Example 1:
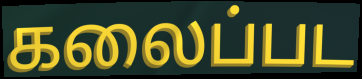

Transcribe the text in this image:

கலைப்பட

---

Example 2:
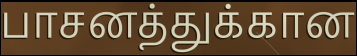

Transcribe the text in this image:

பாசனத்துக்கான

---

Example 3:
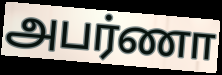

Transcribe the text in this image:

அபர்ணா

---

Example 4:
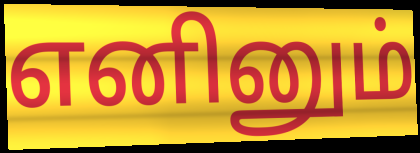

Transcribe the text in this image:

எனினும்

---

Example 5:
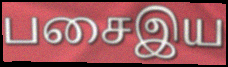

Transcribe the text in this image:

பசைஇய